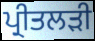
ਪ੍ਰੀਤਲੜੀ